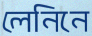
লেনিনে